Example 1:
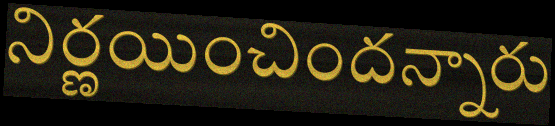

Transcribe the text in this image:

నిర్ణయించిందన్నారు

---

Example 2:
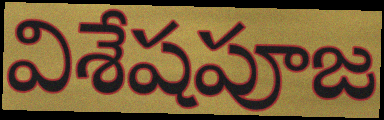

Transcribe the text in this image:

విశేషపూజ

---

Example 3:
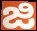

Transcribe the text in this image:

జి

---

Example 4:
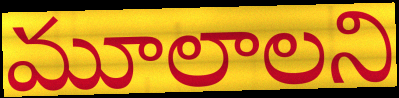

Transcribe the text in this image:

మూలాలని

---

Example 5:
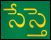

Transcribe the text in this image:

సేస్తె